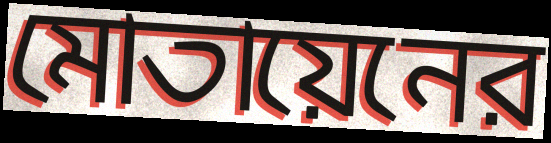
মোতায়েনের